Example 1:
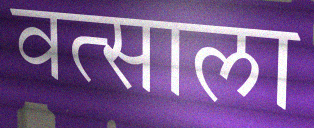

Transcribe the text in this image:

वत्साला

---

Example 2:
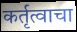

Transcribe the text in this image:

कर्तृत्वाचा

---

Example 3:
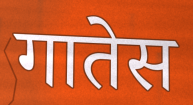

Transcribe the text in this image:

गातेस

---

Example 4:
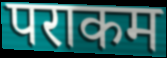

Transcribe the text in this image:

पराकम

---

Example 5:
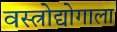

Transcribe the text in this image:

वस्त्रोद्योगाला